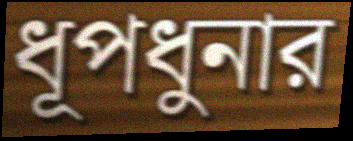
ধূপধুনার